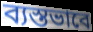
ব্যস্তভাবে